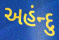
અહંન્દુ